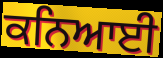
ਕਨਿਆਈ